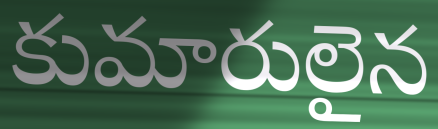
కుమారులైన